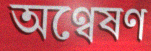
অণ্বেষণ